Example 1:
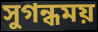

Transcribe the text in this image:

সুগন্ধময়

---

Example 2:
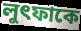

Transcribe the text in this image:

লুৎফাকে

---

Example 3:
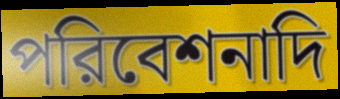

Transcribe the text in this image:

পরিবেশনাদি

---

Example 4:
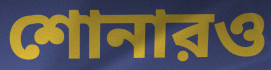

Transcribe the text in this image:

শোনারও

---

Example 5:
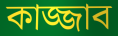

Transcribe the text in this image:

কাজ্জাব